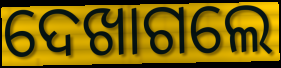
ଦେଖାଗଲେ